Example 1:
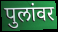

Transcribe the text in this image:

पुलांवर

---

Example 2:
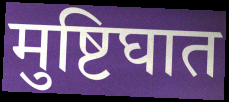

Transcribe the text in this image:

मुष्टिघात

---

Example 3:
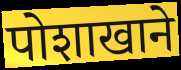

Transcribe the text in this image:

पोशाखाने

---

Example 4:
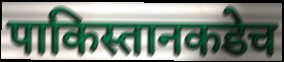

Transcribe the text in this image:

पाकिस्तानकडेच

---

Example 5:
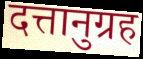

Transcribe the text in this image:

दत्तानुग्रह